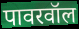
पावरवॉल